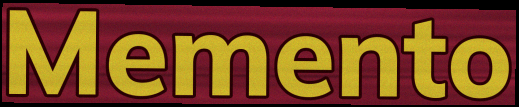
Memento